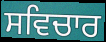
ਸਵਿਚਾਰ